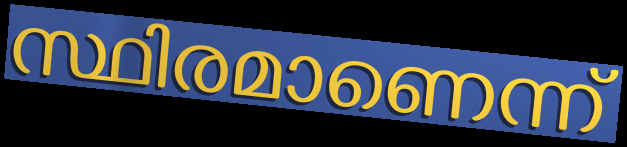
സ്ഥിരമാണെന്ന്